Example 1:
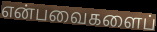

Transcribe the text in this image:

என்பவைகளைப்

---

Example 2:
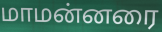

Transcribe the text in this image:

மாமன்னரை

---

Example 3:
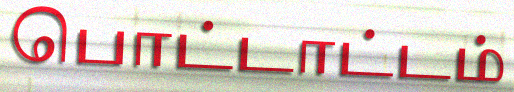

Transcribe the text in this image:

பொட்டாட்டம்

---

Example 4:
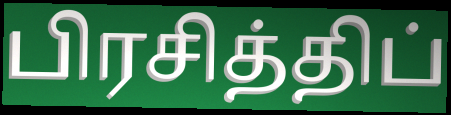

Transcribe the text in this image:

பிரசித்திப்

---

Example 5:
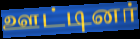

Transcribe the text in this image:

ஊட்டினர்